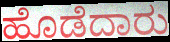
ಹೊಡೆದಾರು